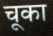
चूका